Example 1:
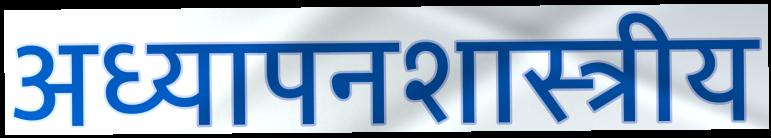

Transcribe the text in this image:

अध्यापनशास्त्रीय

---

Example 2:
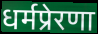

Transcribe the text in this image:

धर्मप्रेरणा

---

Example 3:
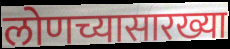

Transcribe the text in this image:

लोणच्यासारख्या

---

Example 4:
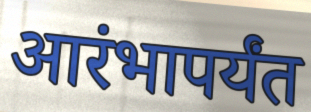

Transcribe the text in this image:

आरंभापर्यंत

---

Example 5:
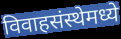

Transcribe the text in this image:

विवाहसंस्थेमध्ये